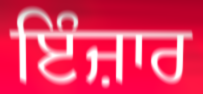
ਇੰਜ਼ਾਰ